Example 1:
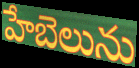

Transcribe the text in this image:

హేబెలును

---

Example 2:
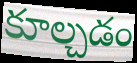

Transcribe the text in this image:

కూల్చడం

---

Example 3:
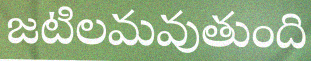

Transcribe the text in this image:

జటిలమవుతుంది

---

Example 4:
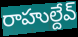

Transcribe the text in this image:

రాహుల్దేవ్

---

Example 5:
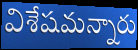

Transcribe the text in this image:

విశేషమన్నారు